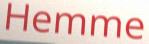
Hemme